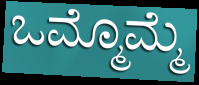
ಒಮ್ಮೊಮ್ಮೆ